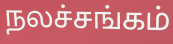
நலச்சங்கம்